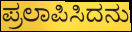
ಪ್ರಲಾಪಿಸಿದನು